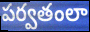
పర్వతంలా